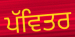
ਪੱਵਿਤਰ